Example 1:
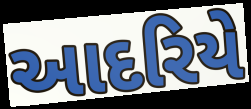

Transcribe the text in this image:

આદરિયે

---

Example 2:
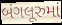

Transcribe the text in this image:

બંગલૂરુમાં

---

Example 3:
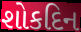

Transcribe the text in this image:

શોકદિન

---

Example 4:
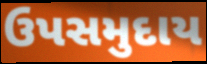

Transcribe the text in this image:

ઉપસમુદાય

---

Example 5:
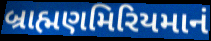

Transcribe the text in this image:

બ્રાહ્મણમિરિયમાનં